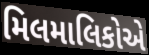
મિલમાલિકોએ